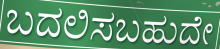
ಬದಲಿಸಬಹುದೇ